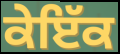
ਕੇਇੱਕ